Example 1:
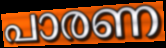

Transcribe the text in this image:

പാരണ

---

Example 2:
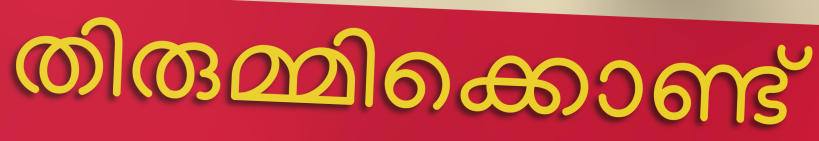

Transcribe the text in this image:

തിരുമ്മിക്കൊണ്ട്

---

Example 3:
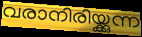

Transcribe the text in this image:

വരാനിരിയ്ക്കുന്ന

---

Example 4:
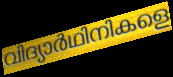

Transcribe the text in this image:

വിദ്യാർഥിനികളെ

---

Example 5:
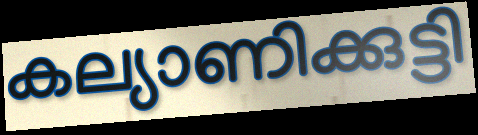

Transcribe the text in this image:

കല്യാണിക്കുട്ടി